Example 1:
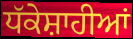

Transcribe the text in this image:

ਧੱਕੇਸ਼ਾਹੀਆਂ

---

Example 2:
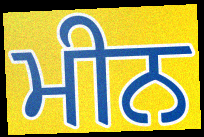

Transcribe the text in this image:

ਮੀਨ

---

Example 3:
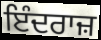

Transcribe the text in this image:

ਇੰਦਰਾਜ਼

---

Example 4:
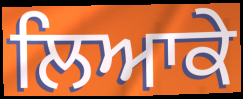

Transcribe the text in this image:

ਲਿਆਕੇ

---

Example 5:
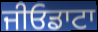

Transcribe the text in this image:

ਜੀਓਡਾਟਾ